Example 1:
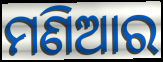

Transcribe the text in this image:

ମଣିଆର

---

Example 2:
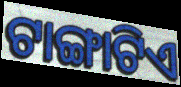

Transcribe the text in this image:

ଟାଙ୍ଗାଟିଏ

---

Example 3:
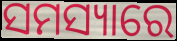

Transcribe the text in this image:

ସମସ୍ୟାରେ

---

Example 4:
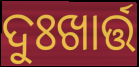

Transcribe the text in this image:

ଦୁଃଖାର୍ତ୍ତ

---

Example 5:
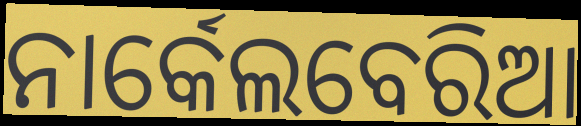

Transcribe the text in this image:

ନାର୍କେଲବେରିଆ